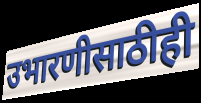
उभारणीसाठीही